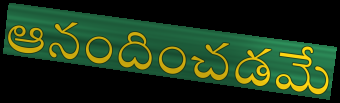
ఆనందించడమే